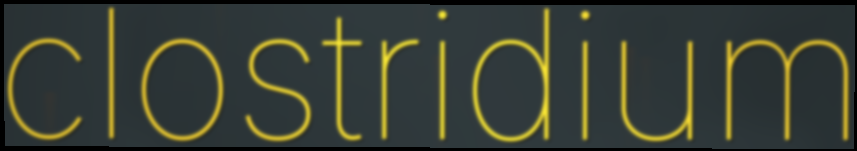
clostridium